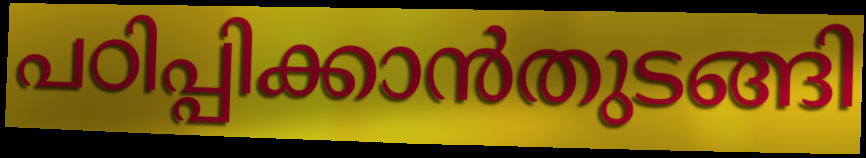
പഠിപ്പിക്കാൻതുടങ്ങി